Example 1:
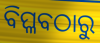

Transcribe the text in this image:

ବିପ୍ଳବଠାରୁ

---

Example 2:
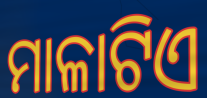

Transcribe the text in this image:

ମାଳାଟିଏ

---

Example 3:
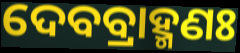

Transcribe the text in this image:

ଦେବବ୍ରାହ୍ମଣଃ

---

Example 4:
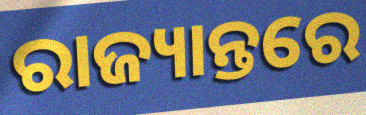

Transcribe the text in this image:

ରାଜ୍ୟାନ୍ତରେ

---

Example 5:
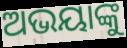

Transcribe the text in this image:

ଅଭୟାଙ୍କୁ